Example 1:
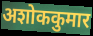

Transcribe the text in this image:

अशोककुमार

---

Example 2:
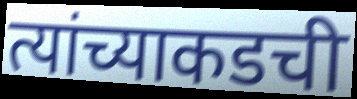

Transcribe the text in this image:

त्यांच्याकडची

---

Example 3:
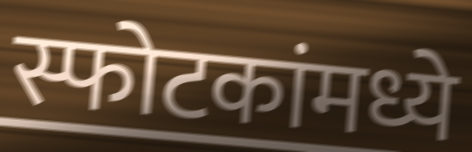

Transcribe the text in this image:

स्फोटकांमध्ये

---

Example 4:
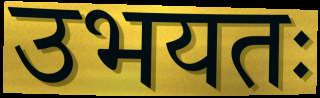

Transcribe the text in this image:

उभयतः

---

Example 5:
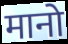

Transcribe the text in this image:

मानो